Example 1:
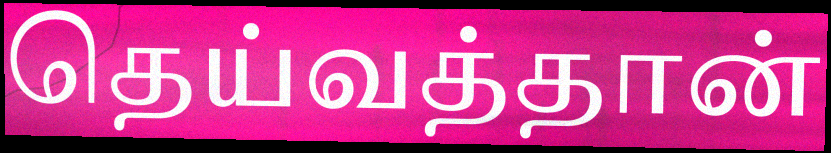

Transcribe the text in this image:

தெய்வத்தான்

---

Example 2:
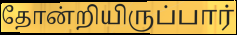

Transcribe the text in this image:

தோன்றியிருப்பார்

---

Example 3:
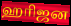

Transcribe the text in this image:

ஹரிஜன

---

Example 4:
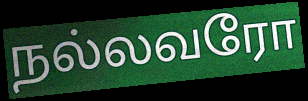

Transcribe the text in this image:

நல்லவரோ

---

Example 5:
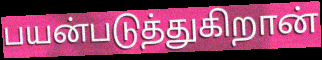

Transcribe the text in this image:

பயன்படுத்துகிறான்